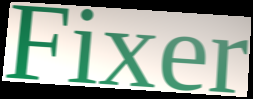
Fixer